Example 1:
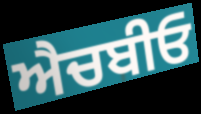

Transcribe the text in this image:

ਐਚਬੀਓ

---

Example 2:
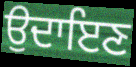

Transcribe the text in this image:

ਉਦਾਇਣ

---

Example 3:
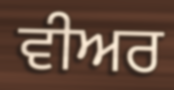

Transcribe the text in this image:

ਵੀਅਰ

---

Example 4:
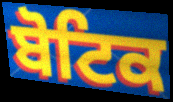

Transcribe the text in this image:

ਬੋਟਿਕ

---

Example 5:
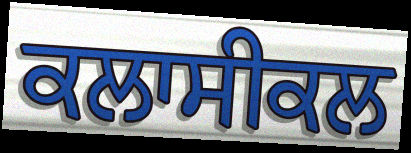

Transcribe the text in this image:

ਕਲਾਸੀਕਲ